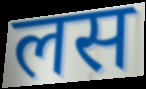
लस